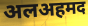
अलअहमद